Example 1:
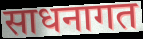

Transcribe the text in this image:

साधनागत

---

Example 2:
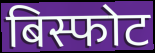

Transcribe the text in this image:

बिस्फोट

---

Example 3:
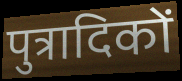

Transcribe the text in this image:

पुत्रादिकों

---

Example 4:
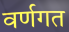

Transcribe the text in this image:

वर्णगत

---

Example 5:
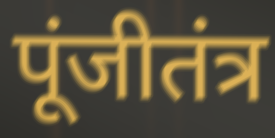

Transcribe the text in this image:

पूंजीतंत्र